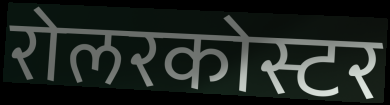
रोलरकोस्टर